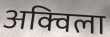
अक्विला